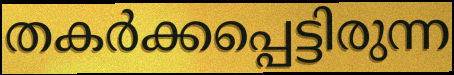
തകർക്കപ്പെട്ടിരുന്ന